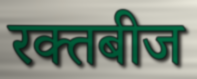
रक्तबीज